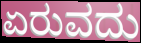
ಏರುವದು